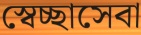
স্বেচ্ছাসেবা